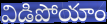
విడిపోయాం